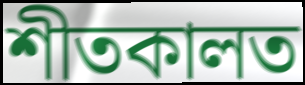
শীতকালত